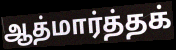
ஆத்மார்த்தக்